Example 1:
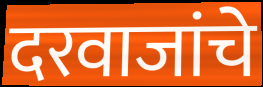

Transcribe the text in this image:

दरवाजांचे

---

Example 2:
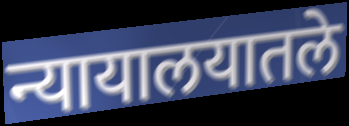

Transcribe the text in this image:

न्यायालयातले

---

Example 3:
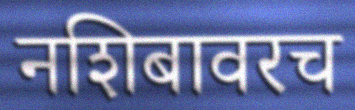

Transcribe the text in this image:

नशिबावरच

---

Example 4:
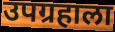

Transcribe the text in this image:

उपग्रहाला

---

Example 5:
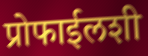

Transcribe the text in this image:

प्रोफाईलशी